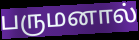
பருமனால்